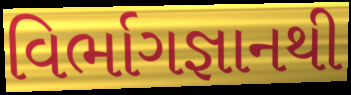
વિર્ભાગજ્ઞાનથી